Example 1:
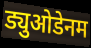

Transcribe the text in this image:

ड्युओडेनम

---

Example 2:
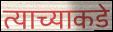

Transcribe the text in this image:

त्याच्याकडे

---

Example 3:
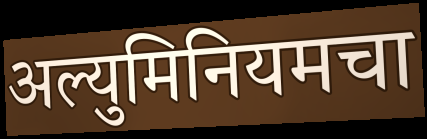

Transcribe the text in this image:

अल्युमिनियमचा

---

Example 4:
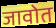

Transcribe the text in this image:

जावोत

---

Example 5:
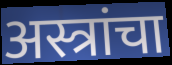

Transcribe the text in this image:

अस्त्रांचा